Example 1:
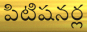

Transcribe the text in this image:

పిటిషనర్ల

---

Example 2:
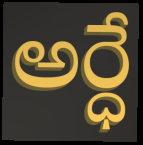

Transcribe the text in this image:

అర్ధే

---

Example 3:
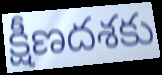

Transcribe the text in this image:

క్షీణదశకు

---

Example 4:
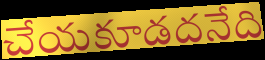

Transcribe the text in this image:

చేయకూడదనేది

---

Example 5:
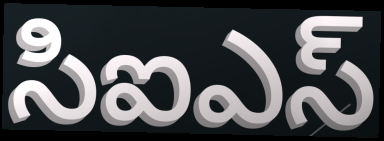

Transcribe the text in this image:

సిఐఎస్